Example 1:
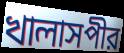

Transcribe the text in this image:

খালাসপীর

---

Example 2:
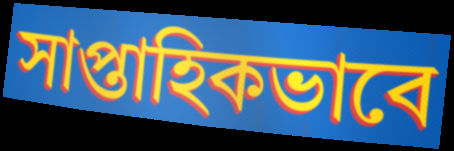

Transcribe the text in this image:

সাপ্তাহিকভাবে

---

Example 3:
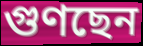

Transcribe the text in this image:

গুণছেন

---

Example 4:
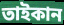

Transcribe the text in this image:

তাইকান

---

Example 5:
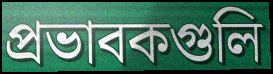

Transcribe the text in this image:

প্রভাবকগুলি